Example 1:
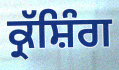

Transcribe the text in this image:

ਕ੍ਰੱਸ਼ਿੰਗ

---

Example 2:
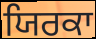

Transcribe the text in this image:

ਯਿਰਕਾ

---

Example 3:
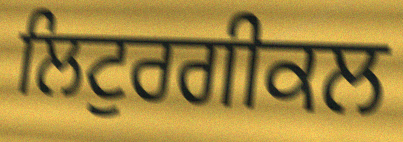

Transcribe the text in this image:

ਲਿਟੁਰਗੀਕਲ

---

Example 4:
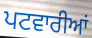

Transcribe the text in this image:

ਪਟਵਾਰੀਆਂ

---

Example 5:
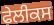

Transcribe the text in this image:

ਫੇਲੀਕਸ